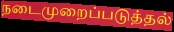
நடைமுறைப்படுத்தல்